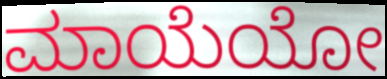
ಮಾಯೆಯೋ